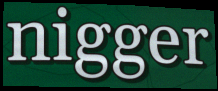
nigger